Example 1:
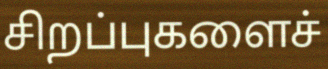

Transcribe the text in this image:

சிறப்புகளைச்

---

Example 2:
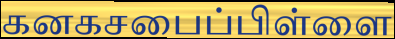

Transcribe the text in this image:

கனகசபைப்பிள்ளை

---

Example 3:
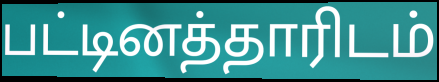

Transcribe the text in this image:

பட்டினத்தாரிடம்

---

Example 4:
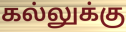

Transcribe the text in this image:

கல்லுக்கு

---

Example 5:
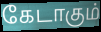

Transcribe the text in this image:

கேடாகும்